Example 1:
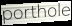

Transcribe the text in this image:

porthole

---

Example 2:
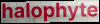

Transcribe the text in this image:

halophyte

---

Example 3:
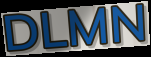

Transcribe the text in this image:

DLMN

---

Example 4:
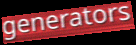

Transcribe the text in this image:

generators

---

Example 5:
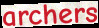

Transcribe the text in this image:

archers